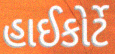
હાઈકોર્ટે